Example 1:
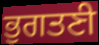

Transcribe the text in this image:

ਭੁਗਤਣੀ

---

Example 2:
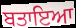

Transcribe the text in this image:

ਬਤਾਇਆ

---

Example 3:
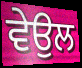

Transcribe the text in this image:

ਵੇਉਲ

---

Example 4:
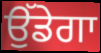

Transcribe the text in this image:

ਉੱਡੇਗਾ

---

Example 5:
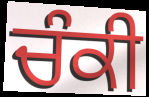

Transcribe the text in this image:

ਚੰਕੀ